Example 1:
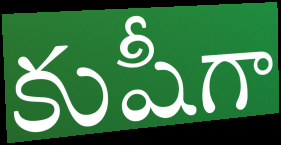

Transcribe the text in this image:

కుషీగా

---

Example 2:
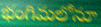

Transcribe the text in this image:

భంగిమలోనూ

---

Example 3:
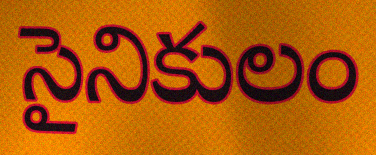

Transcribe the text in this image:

సైనికులం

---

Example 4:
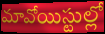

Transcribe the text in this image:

మావోయిస్టుల్లో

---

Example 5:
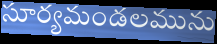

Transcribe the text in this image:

సూర్యమండలమును